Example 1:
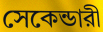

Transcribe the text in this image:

সেকেন্ডারী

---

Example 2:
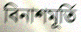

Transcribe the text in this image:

বিনাশমূর্তি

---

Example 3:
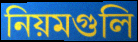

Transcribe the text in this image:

নিয়মগুলি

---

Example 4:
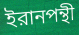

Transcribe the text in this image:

ইরানপন্থী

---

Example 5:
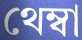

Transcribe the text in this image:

থেম্বা